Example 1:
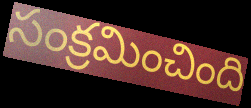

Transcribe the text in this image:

సంక్రమించింది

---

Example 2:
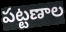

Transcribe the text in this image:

పట్టణాల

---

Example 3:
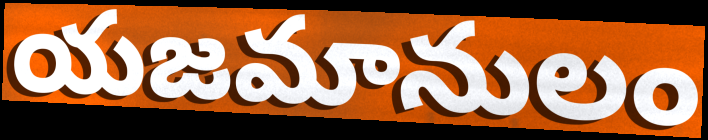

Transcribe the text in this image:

యజమానులం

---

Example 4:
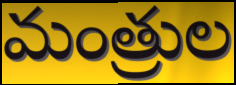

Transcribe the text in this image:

మంత్రుల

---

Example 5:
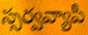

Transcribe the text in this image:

స్సర్వవ్యాపీ